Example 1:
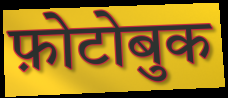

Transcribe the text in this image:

फ़ोटोबुक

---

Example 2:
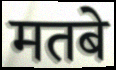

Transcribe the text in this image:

मतबे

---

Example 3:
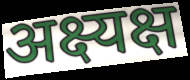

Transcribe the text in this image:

अक्ष्यक्ष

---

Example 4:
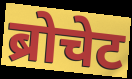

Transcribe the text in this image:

ब्रोचेट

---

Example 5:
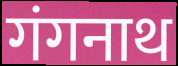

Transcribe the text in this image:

गंगनाथ